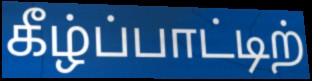
கீழ்ப்பாட்டிற்